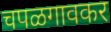
चपळगावकर